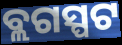
ବ୍ଲଗସ୍ପଟ